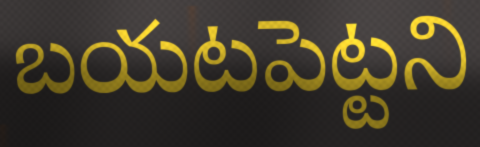
బయటపెట్టని